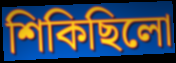
শিকিছিলো